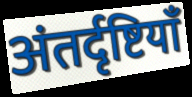
अंतर्दृष्टियाँ